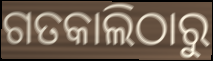
ଗତକାଲିଠାରୁ